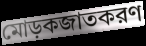
মোড়কজাতকরণ